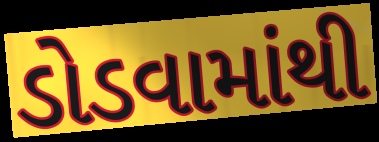
ડોડવામાંથી